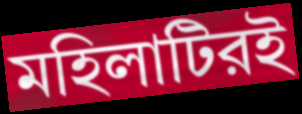
মহিলাটিরই